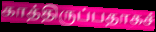
காத்திருப்பதாகச்